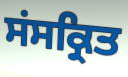
ਸਂਸਕ੍ਰਿਤ